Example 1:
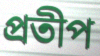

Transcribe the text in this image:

প্রতীপ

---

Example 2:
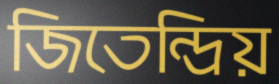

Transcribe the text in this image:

জিতেন্দ্রিয়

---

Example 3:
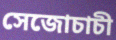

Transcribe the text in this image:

সেজোচাচী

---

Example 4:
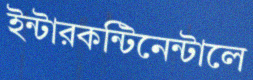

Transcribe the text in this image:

ইন্টারকন্টিনেন্টালে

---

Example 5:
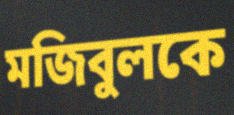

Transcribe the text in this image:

মজিবুলকে